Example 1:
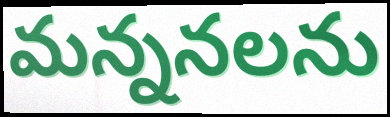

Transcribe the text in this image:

మన్ననలను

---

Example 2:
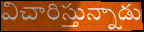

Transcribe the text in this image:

విచారిస్తున్నాడు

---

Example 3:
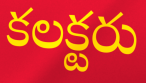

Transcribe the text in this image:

కలక్టరు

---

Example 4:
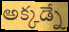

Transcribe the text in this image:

అక్కడ్నే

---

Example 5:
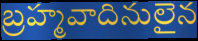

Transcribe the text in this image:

బ్రహ్మవాదినులైన